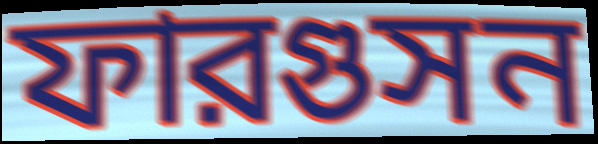
ফারগুসন